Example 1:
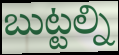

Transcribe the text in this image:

బుట్టల్ని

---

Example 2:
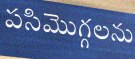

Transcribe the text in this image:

పసిమొగ్గలను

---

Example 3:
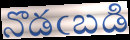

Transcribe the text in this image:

నొడఁబడి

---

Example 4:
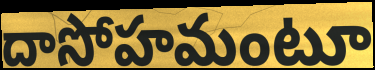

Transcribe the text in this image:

దాసోహమంటూ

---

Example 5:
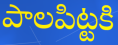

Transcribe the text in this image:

పాలపిట్టకి